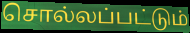
சொல்லப்பட்டும்